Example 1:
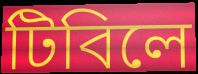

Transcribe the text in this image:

টিবিলে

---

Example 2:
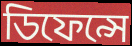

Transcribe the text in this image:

ডিফেন্সে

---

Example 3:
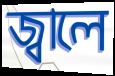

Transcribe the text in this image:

জ্বালে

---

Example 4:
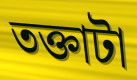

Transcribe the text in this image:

তক্তাটা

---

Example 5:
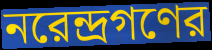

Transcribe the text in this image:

নরেন্দ্রগণের